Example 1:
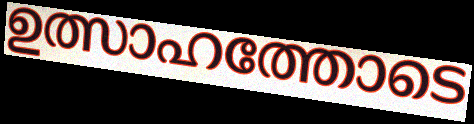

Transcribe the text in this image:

ഉത്സാഹത്തോടെ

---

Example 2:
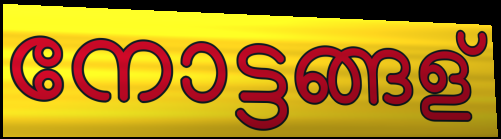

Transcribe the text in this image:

നോട്ടങ്ങള്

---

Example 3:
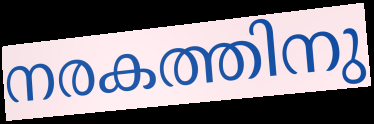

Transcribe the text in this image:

നരകത്തിനു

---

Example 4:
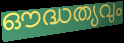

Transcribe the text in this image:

ഔദ്ധത്യവും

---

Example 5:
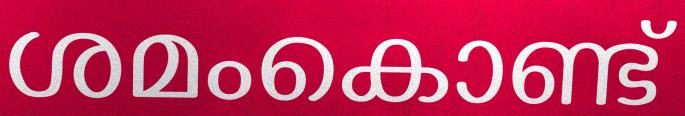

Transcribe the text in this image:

ശമംകൊണ്ട്